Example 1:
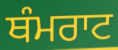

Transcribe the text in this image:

ਥੰਮਰਾਟ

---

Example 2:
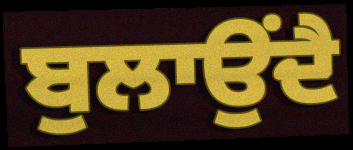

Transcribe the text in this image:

ਬੁਲਾਉਂਦੈ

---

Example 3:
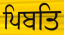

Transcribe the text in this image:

ਪਿਬਤਿ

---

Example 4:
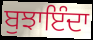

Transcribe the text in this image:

ਬੁਝਾਇੰਦਾ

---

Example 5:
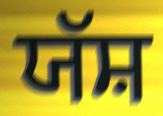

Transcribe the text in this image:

ਯੱਸ਼